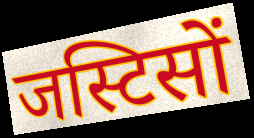
जस्टिसों